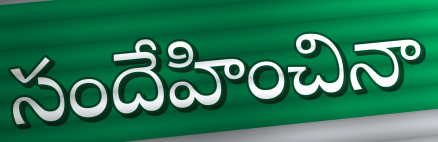
సందేహించినా